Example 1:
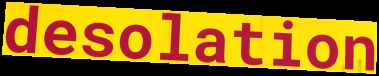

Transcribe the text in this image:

desolation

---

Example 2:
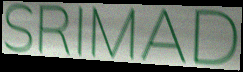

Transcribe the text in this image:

SRIMAD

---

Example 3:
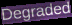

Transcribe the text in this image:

Degraded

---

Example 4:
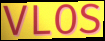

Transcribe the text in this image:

VLOS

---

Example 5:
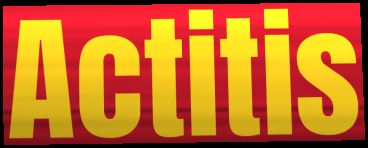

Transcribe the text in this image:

Actitis